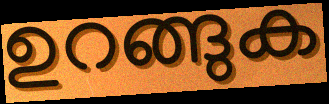
ഉറങ്ങുക